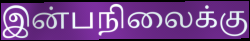
இன்பநிலைக்கு